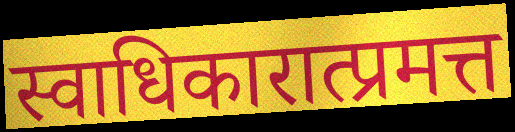
स्वाधिकारात्प्रमत्त